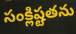
సంక్లిష్టతను